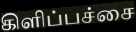
கிளிப்பச்சை